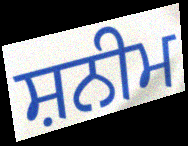
ਸ਼ਨੀਮ